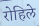
रोहिले